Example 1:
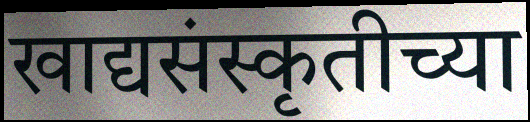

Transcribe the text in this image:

खाद्यसंस्कृतीच्या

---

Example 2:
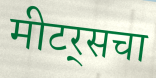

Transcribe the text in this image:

मीटर्सचा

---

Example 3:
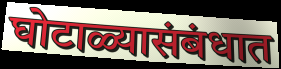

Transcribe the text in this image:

घोटाळ्यासंबंधात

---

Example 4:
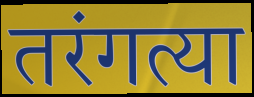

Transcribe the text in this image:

तरंगत्या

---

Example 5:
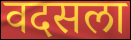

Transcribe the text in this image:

वदसला